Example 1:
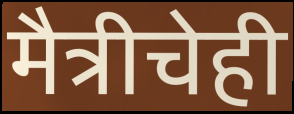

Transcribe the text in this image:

मैत्रीचेही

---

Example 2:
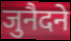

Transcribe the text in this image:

जुनैदने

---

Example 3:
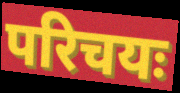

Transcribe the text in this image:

परिचयः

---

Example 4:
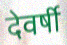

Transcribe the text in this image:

देवर्षी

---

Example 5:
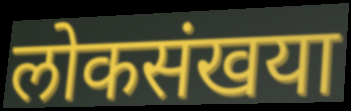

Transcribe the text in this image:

लोकसंखया